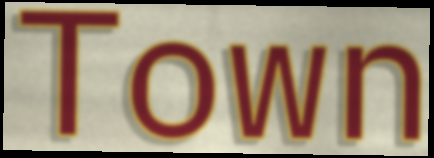
Town